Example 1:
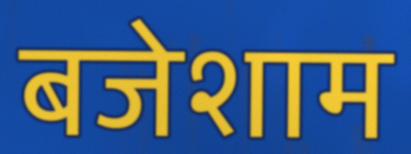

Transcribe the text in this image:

बजेशाम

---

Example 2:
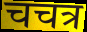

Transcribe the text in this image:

चचत्र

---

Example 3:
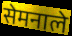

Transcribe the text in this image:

सेमनाले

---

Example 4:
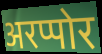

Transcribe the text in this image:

अरप्पोर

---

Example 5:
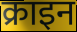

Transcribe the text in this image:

क्राइन